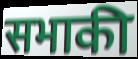
सभाकी